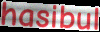
hasibul